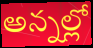
అన్నల్లో